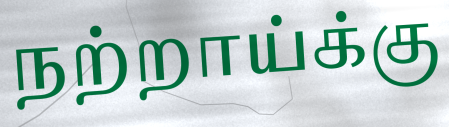
நற்றாய்க்கு